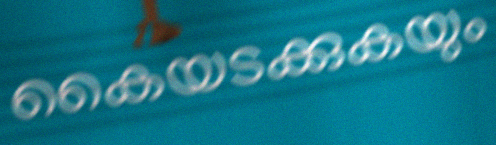
കൈയടക്കുകയും